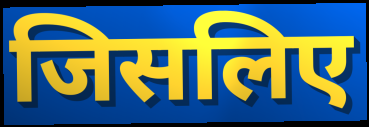
जिसलिए